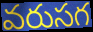
వరుసగ